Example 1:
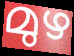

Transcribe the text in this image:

മുഴ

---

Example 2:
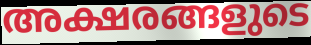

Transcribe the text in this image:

അക്ഷരങ്ങളുടെ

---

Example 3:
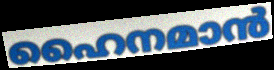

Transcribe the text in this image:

ഹൈനമാൻ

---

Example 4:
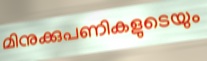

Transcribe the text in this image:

മിനുക്കുപണികളുടെയും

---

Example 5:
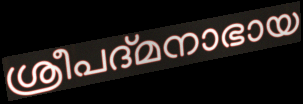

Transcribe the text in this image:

ശ്രീപദ്മനാഭായ